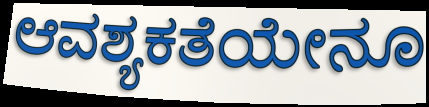
ಆವಶ್ಯಕತೆಯೇನೂ